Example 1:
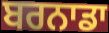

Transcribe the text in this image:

ਬਰਨਾਡਾ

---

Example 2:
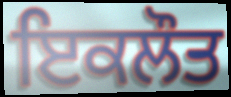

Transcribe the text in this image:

ਇਕਲੌਤ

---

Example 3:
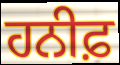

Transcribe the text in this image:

ਹਨੀਫ਼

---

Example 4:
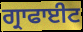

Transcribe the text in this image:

ਗ੍ਰਾਫਾਈਟ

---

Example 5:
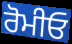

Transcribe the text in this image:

ਰੋਮੀਓ